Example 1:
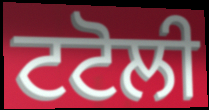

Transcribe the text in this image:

ਟਟੋਲੀ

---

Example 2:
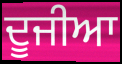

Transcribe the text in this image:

ਦੂਜੀਆ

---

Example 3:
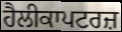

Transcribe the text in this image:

ਹੈਲੀਕਾਪਟਰਜ਼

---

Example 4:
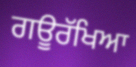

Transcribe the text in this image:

ਗਊਰੱਖਿਆ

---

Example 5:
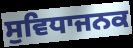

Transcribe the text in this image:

ਸੁਵਿਧਾਜਨਕ